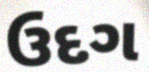
ઉદગ